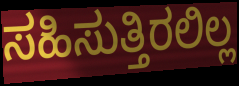
ಸಹಿಸುತ್ತಿರಲಿಲ್ಲ